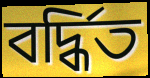
বৰ্দ্ধিত